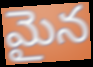
మైన